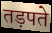
तड़पते